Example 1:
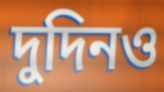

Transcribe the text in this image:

দুদিনও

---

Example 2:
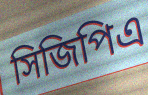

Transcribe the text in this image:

সিজিপিএ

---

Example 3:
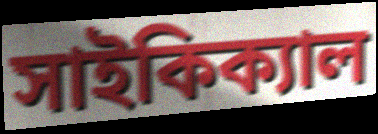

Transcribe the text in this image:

সাইকিক্যাল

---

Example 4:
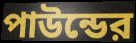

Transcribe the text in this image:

পাউন্ডের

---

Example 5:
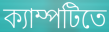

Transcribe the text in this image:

ক্যাম্পটিতে